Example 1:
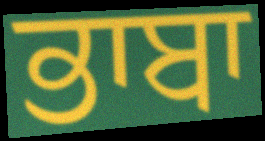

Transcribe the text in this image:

ਭਾਬਾ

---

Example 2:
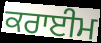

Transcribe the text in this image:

ਕਰਾਈਮ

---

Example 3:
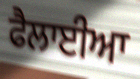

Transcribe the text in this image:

ਫੈਲਾਈਆ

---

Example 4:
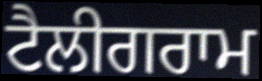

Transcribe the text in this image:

ਟੈਲੀਗਰਾਮ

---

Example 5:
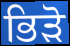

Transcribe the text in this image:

ਭਿੜੋ